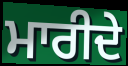
ਮਾਰੀਦੇ